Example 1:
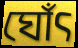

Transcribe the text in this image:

ঘোঁৎ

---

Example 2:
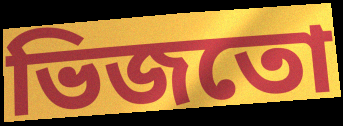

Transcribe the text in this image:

ভিজতো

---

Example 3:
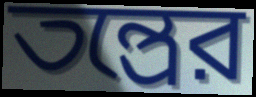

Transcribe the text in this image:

তন্ত্রের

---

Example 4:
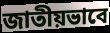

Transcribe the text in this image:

জাতীয়ভাবে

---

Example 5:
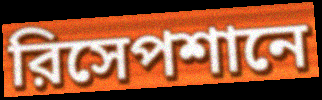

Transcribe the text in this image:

রিসেপশানে